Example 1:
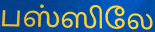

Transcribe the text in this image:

பஸ்ஸிலே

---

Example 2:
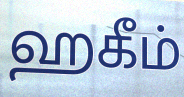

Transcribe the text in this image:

ஹகீம்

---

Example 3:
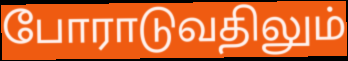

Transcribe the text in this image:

போராடுவதிலும்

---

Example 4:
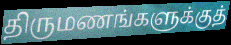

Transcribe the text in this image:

திருமணங்களுக்குத்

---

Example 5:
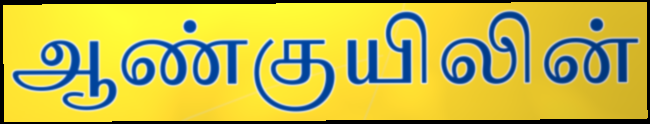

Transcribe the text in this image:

ஆண்குயிலின்